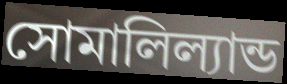
সোমালিল্যান্ড